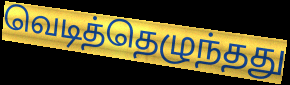
வெடித்தெழுந்தது